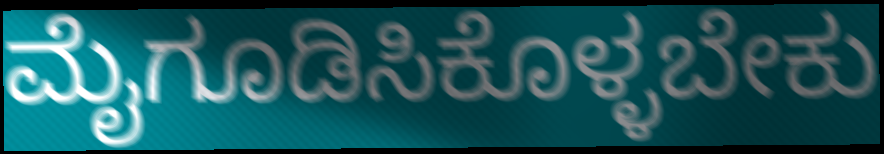
ಮೈಗೂಡಿಸಿಕೊಳ್ಳಬೇಕು